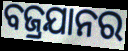
ବଜ୍ରଯାନର